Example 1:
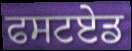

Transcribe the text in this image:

ਫਸਟਏਡ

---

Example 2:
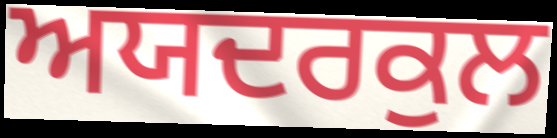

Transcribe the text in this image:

ਅਯਦਰਕੁਲ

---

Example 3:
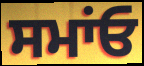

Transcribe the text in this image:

ਸਮਾਂਓ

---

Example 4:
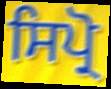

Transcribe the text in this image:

ਸਿਪ੍ਰੋ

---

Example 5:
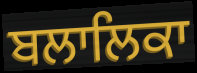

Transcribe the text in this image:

ਬਲਾਲਿਕਾ